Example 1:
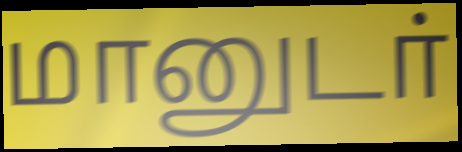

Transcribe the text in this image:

மானுடர்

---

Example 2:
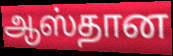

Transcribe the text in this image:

ஆஸ்தான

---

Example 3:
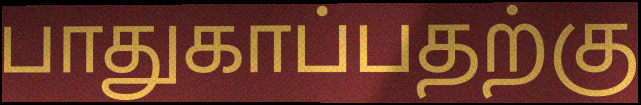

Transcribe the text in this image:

பாதுகாப்பதற்கு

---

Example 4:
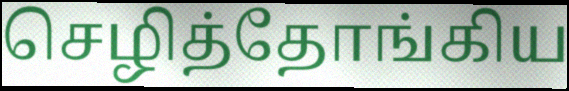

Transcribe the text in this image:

செழித்தோங்கிய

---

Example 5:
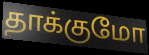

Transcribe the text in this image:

தாக்குமோ